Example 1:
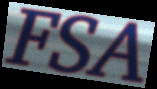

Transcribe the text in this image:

FSA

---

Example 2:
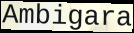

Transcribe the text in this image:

Ambigara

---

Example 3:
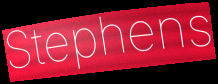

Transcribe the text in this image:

Stephens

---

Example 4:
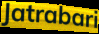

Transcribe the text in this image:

Jatrabari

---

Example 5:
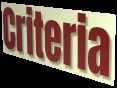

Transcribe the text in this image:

Criteria